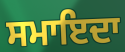
ਸਮਾਇਦਾ